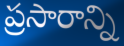
ప్రసారాన్ని